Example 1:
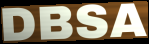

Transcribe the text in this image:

DBSA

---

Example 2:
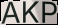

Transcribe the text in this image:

AKP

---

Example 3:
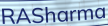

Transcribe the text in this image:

RASharma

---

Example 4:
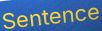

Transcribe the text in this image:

Sentence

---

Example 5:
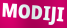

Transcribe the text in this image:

MODIJI